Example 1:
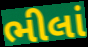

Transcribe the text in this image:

ભીલાં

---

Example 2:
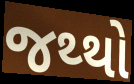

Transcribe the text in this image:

જથ્થો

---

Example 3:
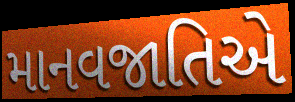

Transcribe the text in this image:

માનવજાતિએ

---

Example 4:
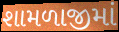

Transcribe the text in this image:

શામળાજીમાં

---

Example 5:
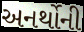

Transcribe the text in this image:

અનર્થોની